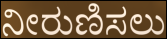
ನೀರುಣಿಸಲು